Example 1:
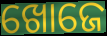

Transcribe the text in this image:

ଖୋଜେ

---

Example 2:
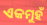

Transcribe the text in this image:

ଏକମୁହଁ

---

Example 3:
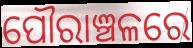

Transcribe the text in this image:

ପୌରାଞ୍ଚଳରେ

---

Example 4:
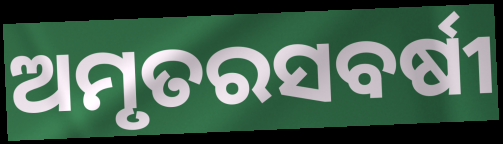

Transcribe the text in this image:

ଅମୃତରସବର୍ଷୀ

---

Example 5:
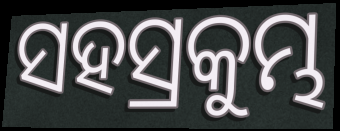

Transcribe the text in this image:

ସହସ୍ରକୁମ୍ଭ